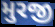
મુરજી